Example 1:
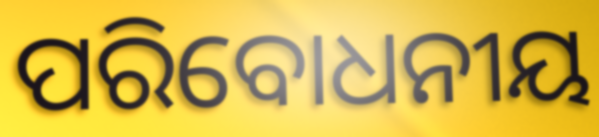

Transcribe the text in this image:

ପରିବୋଧନୀୟ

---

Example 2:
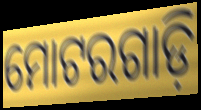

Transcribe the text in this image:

ମୋଟରଗାଡ଼ି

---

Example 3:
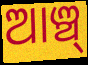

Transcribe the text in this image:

ଆଞ୍ଚ୍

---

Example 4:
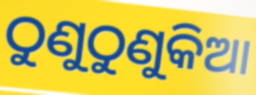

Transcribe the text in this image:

ଠୁଣୁଠୁଣୁକିଆ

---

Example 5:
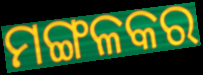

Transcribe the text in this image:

ମଙ୍ଗଳକର